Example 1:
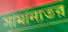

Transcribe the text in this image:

সামান্যতর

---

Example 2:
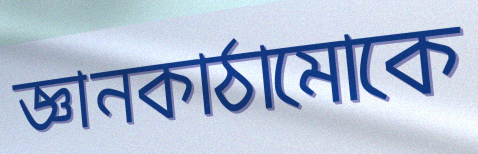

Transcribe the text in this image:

জ্ঞানকাঠামোকে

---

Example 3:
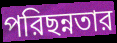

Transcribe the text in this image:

পরিছন্নতার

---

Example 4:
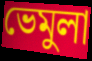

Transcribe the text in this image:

ভেমুলা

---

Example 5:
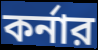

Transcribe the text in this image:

কর্নার